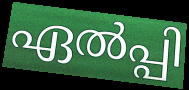
ഏൽപ്പി